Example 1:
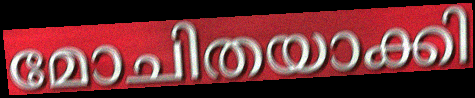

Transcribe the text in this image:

മോചിതയാക്കി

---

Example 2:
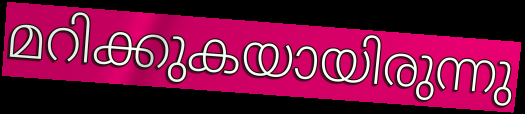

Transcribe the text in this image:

മറിക്കുകയായിരുന്നു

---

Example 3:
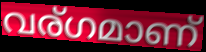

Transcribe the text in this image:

വര്ഗമാണ്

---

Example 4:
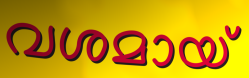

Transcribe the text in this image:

വശമായ്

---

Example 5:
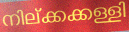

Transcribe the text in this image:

നില്ക്കക്കള്ളി